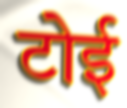
टोई